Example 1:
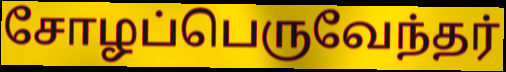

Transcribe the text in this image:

சோழப்பெருவேந்தர்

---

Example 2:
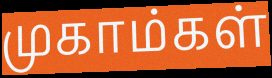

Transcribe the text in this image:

முகாம்கள்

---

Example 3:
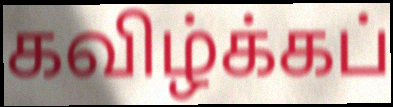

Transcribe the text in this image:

கவிழ்க்கப்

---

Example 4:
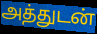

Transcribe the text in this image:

அத்துடன்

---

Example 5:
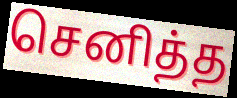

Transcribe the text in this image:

செனித்த